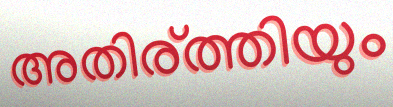
അതിര്ത്തിയും